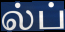
ல்ப்